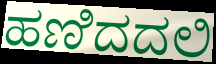
ಹಣಿದದಲಿ